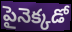
పైనెక్కడో